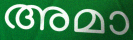
അമാ